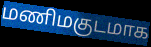
மணிமகுடமாக